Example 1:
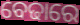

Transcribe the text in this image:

ବେଢାରେ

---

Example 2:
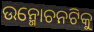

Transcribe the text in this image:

ଉନ୍ମୋଚନଟିକୁ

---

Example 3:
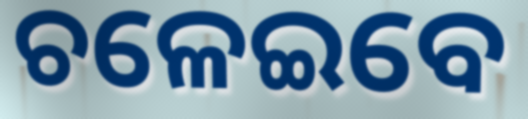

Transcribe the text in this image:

ଚଳେଇବେ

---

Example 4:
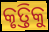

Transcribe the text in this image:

କୃତ୍ତିକୁ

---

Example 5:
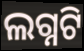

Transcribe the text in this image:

ଲଗ୍ନଟି